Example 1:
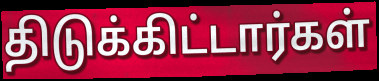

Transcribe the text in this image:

திடுக்கிட்டார்கள்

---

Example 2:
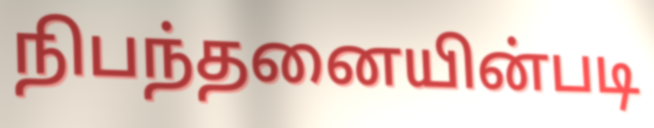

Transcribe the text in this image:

நிபந்தனையின்படி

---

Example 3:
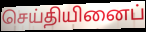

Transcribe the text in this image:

செய்தியினைப்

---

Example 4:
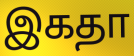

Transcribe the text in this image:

இகதா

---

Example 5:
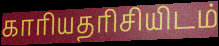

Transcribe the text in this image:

காரியதரிசியிடம்